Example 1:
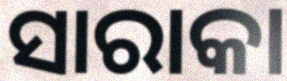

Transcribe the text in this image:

ସାରାକା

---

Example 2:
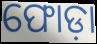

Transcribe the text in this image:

ଫୋଡ଼ା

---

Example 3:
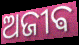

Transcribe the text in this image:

ଅଜୀଵ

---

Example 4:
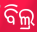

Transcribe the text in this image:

ବିଲ୍ର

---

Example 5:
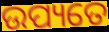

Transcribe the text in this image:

ଉପ୍ୟତେ